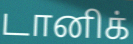
டானிக்